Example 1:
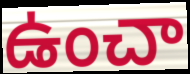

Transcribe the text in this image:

ఉంచా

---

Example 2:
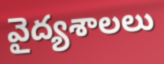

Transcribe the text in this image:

వైద్యశాలలు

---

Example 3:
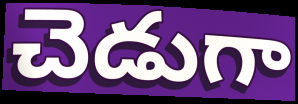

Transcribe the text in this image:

చెడుగా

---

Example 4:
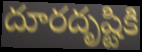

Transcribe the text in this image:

దూరదృష్టికి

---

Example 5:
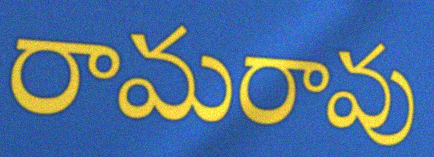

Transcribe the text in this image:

రామరావు